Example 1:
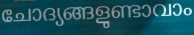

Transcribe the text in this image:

ചോദ്യങ്ങളുണ്ടാവാം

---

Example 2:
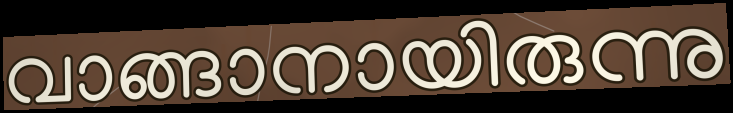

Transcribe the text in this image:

വാങ്ങാനായിരുന്നു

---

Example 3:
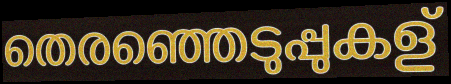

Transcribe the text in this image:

തെരഞ്ഞെടുപ്പുകള്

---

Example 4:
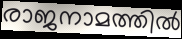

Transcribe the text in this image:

രാജനാമത്തിൽ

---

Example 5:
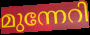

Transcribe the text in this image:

മുന്നേറി